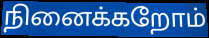
நினைக்கறோம்